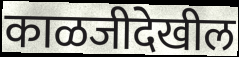
काळजीदेखील